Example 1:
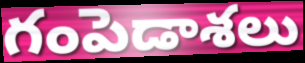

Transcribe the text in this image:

గంపెడాశలు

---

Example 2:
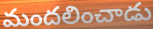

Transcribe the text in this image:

మందలించాడు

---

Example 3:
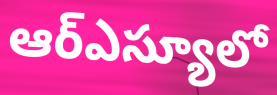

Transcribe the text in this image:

ఆర్ఎస్యూలో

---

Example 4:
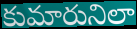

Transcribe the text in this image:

కుమారునిలా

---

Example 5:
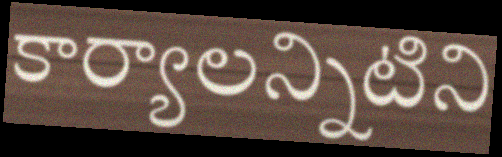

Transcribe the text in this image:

కార్యాలన్నిటిని